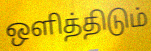
ஒளித்திடும்